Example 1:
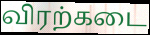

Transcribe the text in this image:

விரற்கடை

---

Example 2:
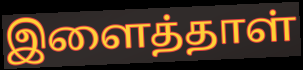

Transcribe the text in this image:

இளைத்தாள்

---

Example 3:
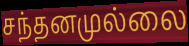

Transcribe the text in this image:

சந்தனமுல்லை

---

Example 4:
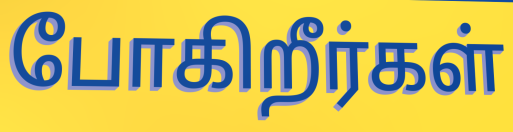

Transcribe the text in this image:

போகிறீர்கள்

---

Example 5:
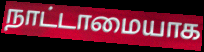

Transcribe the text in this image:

நாட்டாமையாக